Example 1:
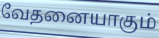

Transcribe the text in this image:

வேதனையாகும்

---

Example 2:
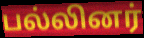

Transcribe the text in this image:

பல்லினர்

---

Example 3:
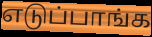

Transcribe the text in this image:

எடுப்பாங்க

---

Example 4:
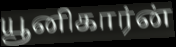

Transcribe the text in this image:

யூனிகார்ன்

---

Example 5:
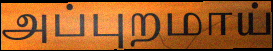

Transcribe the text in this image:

அப்புறமாய்